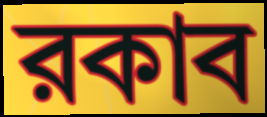
রকাব